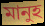
মানুহ